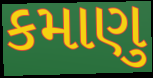
કમાણુ